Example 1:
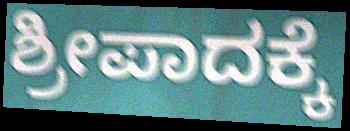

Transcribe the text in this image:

ಶ್ರೀಪಾದಕ್ಕೆ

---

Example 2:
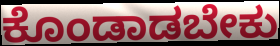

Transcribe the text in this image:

ಕೊಂಡಾಡಬೇಕು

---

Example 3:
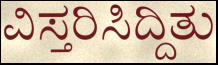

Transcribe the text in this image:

ವಿಸ್ತರಿಸಿದ್ದಿತು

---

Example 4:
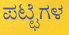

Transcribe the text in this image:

ಪಟ್ಟೆಗಳ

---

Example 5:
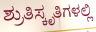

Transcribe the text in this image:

ಶ್ರುತಿಸ್ಕೃತಿಗಳಲ್ಲಿ